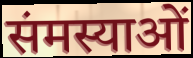
संमस्याओं